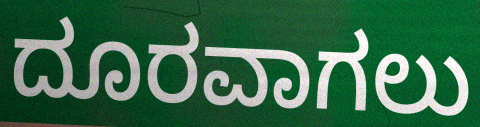
ದೂರವಾಗಲು